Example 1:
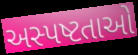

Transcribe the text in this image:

અસ્પષ્ટતાઓ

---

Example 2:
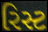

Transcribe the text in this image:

રિસ્ટ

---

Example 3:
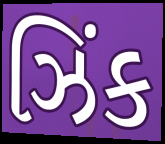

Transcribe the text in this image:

ઝિંક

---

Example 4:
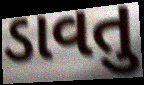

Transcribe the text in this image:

ડાવતુ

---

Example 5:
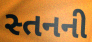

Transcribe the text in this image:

સ્તનની